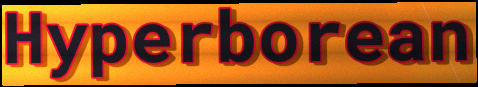
Hyperborean